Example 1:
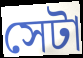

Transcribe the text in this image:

সেটা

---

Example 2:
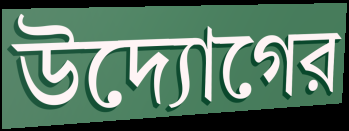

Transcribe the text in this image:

উদ্যোগের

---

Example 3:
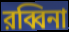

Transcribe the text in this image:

রব্বিনা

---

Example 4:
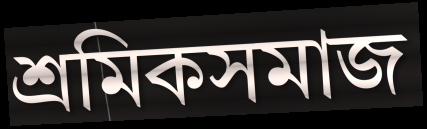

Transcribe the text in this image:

শ্রমিকসমাজ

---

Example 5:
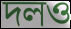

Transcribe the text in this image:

দলও